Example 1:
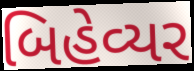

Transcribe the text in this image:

બિહેવ્યર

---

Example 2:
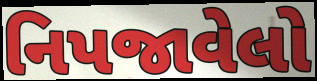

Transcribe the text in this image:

નિપજાવેલો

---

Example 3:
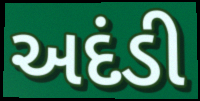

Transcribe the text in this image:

અદંડી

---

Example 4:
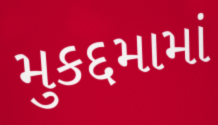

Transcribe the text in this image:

મુકદ્દમામાં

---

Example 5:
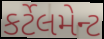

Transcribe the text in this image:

કર્ટેલમેન્ટ